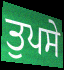
ਤੁਪਸੇ